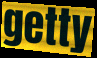
getty